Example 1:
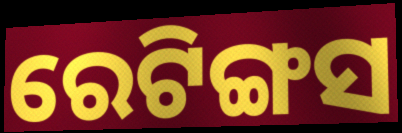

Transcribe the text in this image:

ରେଟିଙ୍ଗସ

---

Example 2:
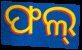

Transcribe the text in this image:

ଫଲ୍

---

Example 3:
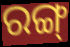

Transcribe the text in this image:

ରଙ୍ଗ୍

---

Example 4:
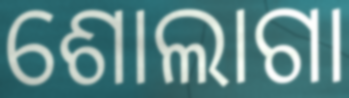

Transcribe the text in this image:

ଶୋଲାଗା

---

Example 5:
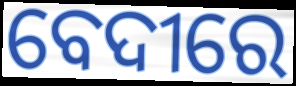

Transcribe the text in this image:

ବେଦୀରେ